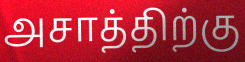
அசாத்திற்கு